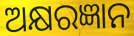
ଅକ୍ଷରଜ୍ଞାନ